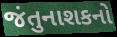
જંતુનાશકનો